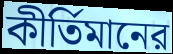
কীর্তিমানের